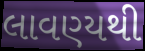
લાવણ્યથી